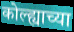
कोल्ह्याच्या